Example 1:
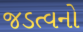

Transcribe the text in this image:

જડત્વનો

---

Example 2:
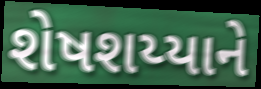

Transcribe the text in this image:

શેષશય્યાને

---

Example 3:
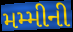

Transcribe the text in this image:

મમ્મીની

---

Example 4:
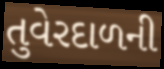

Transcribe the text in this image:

તુવેરદાળની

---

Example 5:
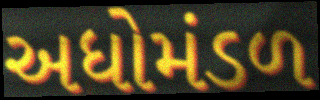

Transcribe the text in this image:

અધોમંડળ